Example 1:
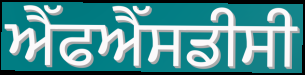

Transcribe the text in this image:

ਐੱਫਐੱਸਡੀਸੀ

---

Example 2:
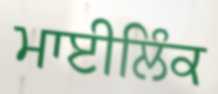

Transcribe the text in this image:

ਮਾਈਲਿੰਕ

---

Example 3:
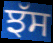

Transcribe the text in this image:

ਝੱਸ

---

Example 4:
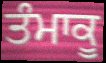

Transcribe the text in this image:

ਤੰਮਾਕੂ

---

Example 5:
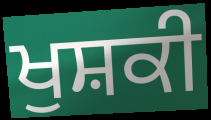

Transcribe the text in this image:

ਖੁਸ਼ਕੀ